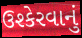
ઉશ્કેરવાનું